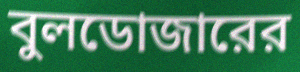
বুলডোজারের